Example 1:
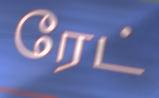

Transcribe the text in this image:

ரேட்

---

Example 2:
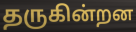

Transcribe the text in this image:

தருகின்றன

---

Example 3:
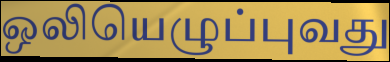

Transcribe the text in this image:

ஒலியெழுப்புவது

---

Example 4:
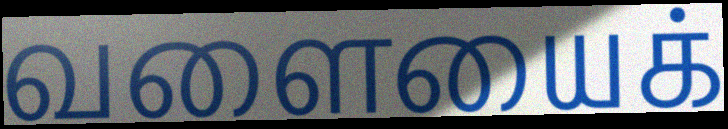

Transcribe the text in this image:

வளையைக்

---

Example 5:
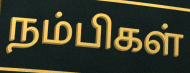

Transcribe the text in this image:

நம்பிகள்